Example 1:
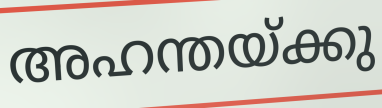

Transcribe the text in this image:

അഹന്തയ്ക്കു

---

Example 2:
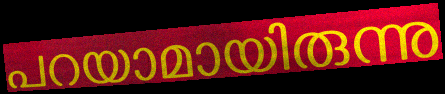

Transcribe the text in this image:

പറയാമായിരുന്നു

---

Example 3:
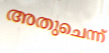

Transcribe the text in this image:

അതുചെന്ന്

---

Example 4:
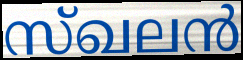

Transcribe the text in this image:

സ്ഖലൻ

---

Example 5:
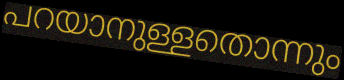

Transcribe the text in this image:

പറയാനുള്ളതൊന്നും